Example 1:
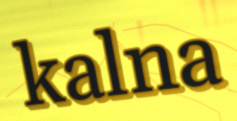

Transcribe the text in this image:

kalna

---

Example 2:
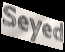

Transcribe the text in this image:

Seyed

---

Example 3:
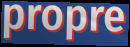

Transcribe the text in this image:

propre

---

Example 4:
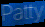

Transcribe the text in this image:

Patty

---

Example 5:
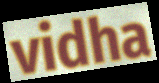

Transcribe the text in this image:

vidha